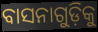
ବାସନାଗୁଡ଼ିକୁ